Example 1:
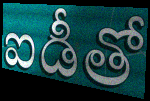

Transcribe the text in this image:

ఐడీతో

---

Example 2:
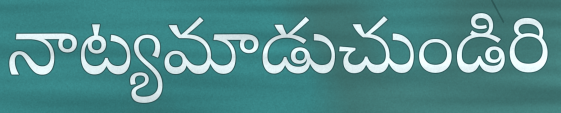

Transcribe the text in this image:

నాట్యమాడుచుండిరి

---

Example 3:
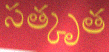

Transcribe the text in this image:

సత్కృత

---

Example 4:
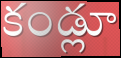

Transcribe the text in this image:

కండ్లూ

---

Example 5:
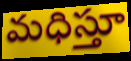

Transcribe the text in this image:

మధిస్తూ